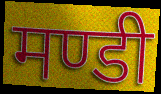
मण्डी